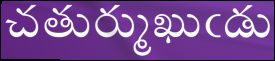
చతుర్ముఖుఁడు